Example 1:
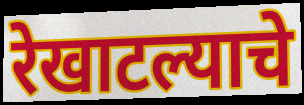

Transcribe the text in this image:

रेखाटल्याचे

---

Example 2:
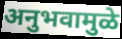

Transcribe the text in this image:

अनुभवामुळे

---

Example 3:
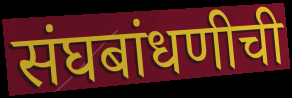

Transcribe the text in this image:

संघबांधणीची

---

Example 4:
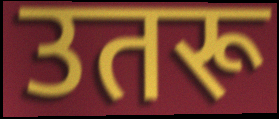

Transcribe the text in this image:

उतरू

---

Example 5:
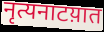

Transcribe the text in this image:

नृत्यनाटय़ात